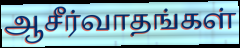
ஆசீர்வாதங்கள்